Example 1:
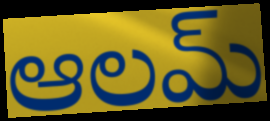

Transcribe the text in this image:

ఆలమ్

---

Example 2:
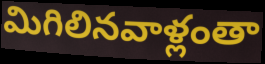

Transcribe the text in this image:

మిగిలినవాళ్లంతా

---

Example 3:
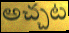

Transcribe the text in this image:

అచ్చట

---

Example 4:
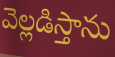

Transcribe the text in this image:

వెల్లడిస్తాను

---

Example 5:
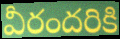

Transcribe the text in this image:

వీరందరికి